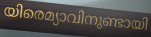
യിരെമ്യാവിനുണ്ടായി